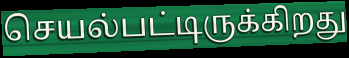
செயல்பட்டிருக்கிறது